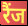
रैंज